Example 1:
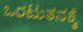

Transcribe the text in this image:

ಒರಟುತನಕ್ಕೆ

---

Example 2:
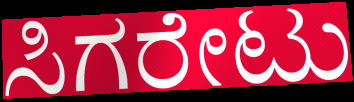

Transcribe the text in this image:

ಸಿಗರೇಟು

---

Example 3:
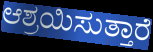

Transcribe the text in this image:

ಆಶ್ರಯಿಸುತ್ತಾರೆ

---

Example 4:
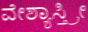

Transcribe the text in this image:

ವೇಶ್ಯಾಸ್ತ್ರೀ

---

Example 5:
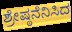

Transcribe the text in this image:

ಶ್ರೇಷ್ಠನೆನಿಸಿದ